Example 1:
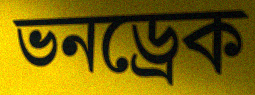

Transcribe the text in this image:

ভনড্রেক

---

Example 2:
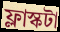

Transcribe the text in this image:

ফ্লাস্কটা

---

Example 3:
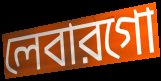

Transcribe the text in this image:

লেবারগো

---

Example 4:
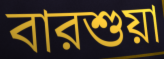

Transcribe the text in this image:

বারশুয়া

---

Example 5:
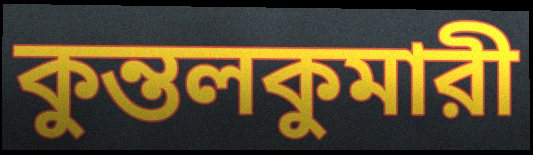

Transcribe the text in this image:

কুন্তলকুমারী